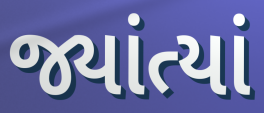
જ્યાંત્યાં